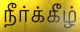
நீர்க்கீழ்